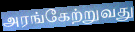
அரங்கேற்றுவது